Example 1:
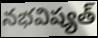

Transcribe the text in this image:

నభవిష్యత్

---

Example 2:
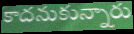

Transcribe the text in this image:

కాదనుకున్నారు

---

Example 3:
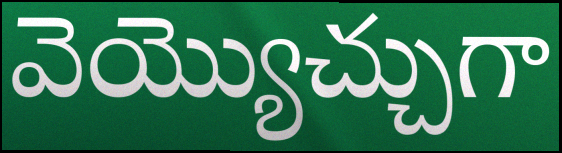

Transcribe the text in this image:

వెయ్యొచ్చుగా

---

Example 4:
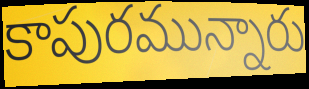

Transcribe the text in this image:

కాపురమున్నారు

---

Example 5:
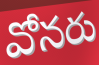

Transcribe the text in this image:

వోనరు